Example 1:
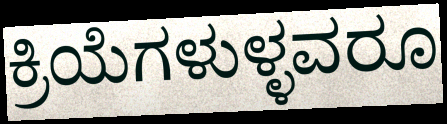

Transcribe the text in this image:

ಕ್ರಿಯೆಗಳುಳ್ಳವರೂ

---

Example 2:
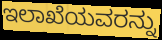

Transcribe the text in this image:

ಇಲಾಖೆಯವರನ್ನು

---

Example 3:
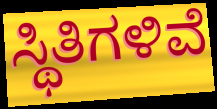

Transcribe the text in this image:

ಸ್ಥಿತಿಗಳಿವೆ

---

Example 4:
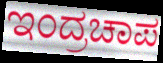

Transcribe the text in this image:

ಇಂದ್ರಚಾಪ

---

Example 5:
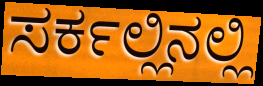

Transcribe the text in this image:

ಸರ್ಕಲ್ಲಿನಲ್ಲಿ